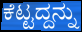
ಕೆಟ್ಟದ್ದನ್ನು